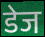
डेज